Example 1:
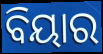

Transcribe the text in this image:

ବିୟାର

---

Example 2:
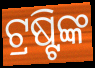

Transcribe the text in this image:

ଟ୍ରଷ୍ଟିଙ୍କ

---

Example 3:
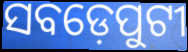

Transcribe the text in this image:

ସବଡ଼େପୁଟୀ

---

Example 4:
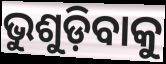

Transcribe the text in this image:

ଭୁଶୁଡ଼ିବାକୁ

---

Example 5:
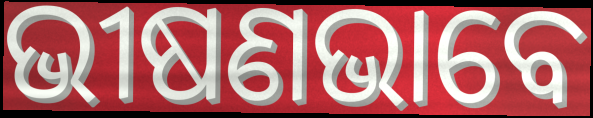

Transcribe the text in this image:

ଭୀଷଣଭାବେ